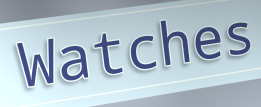
Watches